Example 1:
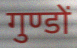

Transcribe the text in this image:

गुण्डों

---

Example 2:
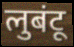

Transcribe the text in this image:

लुबंटू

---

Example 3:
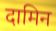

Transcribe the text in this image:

दामिन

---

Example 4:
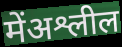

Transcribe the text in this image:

मेंअश्लील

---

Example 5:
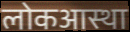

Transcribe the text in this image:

लोकआस्था